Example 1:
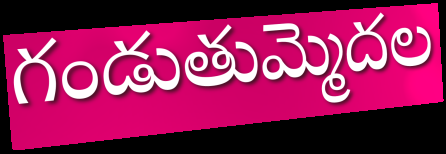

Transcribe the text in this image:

గండుతుమ్మెదల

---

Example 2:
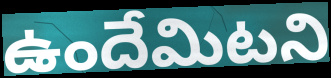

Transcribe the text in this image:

ఉందేమిటని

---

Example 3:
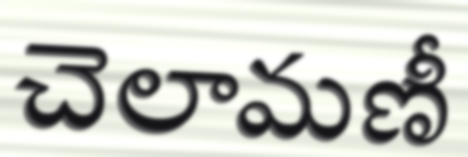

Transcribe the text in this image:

చెలామణీ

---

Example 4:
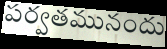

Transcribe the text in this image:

పర్వతమునందు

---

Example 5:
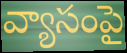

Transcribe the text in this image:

వ్యాసంపై